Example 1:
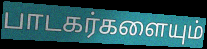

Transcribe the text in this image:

பாடகர்களையும்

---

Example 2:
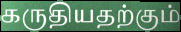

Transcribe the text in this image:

கருதியதற்கும்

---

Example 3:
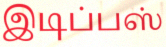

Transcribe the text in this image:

இடிப்பஸ்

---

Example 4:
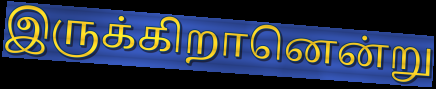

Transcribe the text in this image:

இருக்கிறானென்று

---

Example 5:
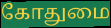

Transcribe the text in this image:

கோதுமை